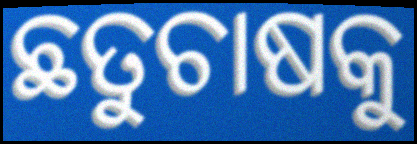
ଛତୁଚାଷକୁ